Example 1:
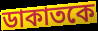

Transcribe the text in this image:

ডাকাতকে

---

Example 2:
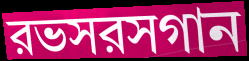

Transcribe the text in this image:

রভসরসগান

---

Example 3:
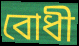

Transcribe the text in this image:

বোধী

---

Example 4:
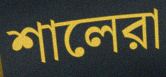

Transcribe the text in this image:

শালেরা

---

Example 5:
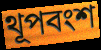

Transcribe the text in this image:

থূপবংশ